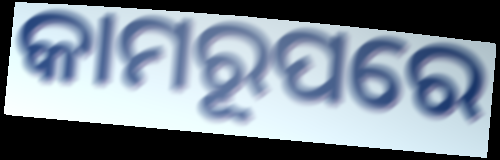
କାମରୂପରେ